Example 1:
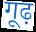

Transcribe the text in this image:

गूढ़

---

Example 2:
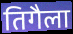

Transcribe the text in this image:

तिगैला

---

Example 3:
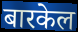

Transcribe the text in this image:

बारकेल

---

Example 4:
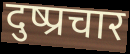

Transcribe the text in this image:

दुष्प्रचार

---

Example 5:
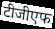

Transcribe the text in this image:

टीजीएफ